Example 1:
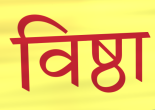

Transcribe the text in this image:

विष्ठा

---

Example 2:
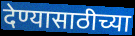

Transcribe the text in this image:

देण्यासाठीच्या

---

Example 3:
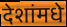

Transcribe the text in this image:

देशांमधे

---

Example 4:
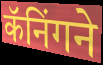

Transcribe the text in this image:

कॅनिंगने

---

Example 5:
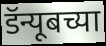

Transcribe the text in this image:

डॅन्यूबच्या